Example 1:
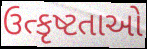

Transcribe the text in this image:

ઉત્કૃષ્ટતાઓ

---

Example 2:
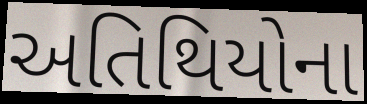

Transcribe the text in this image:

અતિથિયોના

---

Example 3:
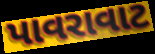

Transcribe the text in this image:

પાવરાવાટ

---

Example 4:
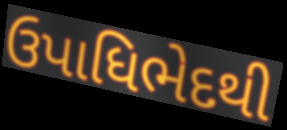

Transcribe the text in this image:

ઉપાધિભેદથી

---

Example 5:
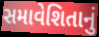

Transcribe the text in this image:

સમાવેશિતાનું